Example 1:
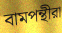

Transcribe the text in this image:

বামপন্থীরা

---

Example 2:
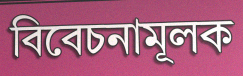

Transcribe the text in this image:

বিবেচনামূলক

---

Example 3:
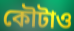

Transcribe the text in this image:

কৌটাও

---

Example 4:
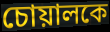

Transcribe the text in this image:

চোয়ালকে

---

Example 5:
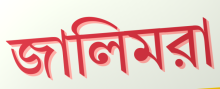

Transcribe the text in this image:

জালিমরা